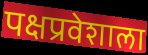
पक्षप्रवेशाला